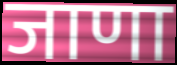
जाणा